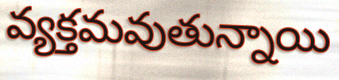
వ్యక్తమవుతున్నాయి